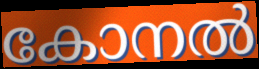
കോനൽ